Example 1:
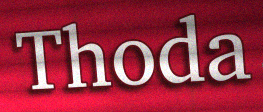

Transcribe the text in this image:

Thoda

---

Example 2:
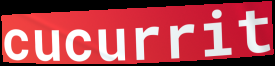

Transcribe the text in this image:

cucurrit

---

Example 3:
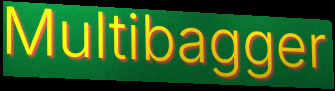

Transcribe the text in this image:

Multibagger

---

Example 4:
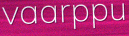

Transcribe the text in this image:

vaarppu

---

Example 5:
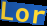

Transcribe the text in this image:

Lor